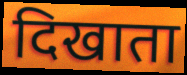
दिखाता